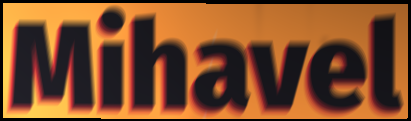
Mihavel